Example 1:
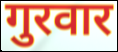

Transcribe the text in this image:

गुरवार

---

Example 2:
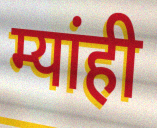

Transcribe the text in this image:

म्यांही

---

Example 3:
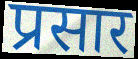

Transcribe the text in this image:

प्रसार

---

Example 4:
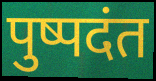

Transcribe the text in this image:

पुष्पदंत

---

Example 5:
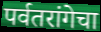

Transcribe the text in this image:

पर्वतरांगेचा